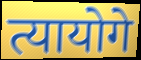
त्यायोगे